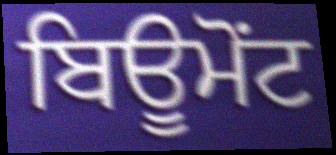
ਬਿਊਮੋਂਟ